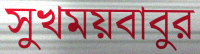
সুখময়বাবুর